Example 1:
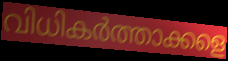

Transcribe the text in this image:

വിധികർത്താക്കളെ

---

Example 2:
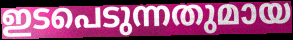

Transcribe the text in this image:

ഇടപെടുന്നതുമായ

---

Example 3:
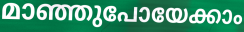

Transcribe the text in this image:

മാഞ്ഞുപോയേക്കാം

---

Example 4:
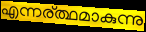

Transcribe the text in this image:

എന്നര്ത്ഥമാകുന്നു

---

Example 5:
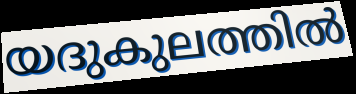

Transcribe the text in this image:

യദുകുലത്തിൽ